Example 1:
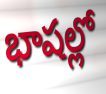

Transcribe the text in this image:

భాషల్లో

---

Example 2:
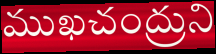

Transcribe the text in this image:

ముఖచంద్రుని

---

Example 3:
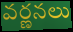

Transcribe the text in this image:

వర్ణనలు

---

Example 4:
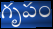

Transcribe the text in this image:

గృపం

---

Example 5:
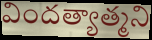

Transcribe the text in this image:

విందత్యాత్మని